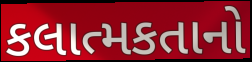
કલાત્મકતાનો